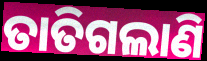
ତାତିଗଲାଣି